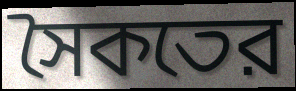
সৈকতের